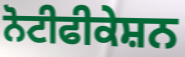
ਨੋਟੀਫੀਕੇਸ਼ਨ